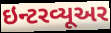
ઇન્ટરવ્યૂઅર